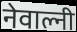
नेवाल्नी